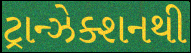
ટ્રાન્ઝેક્શનથી